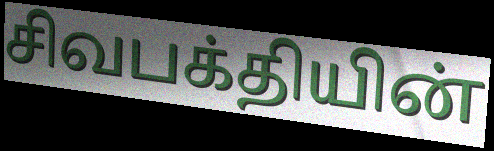
சிவபக்தியின்